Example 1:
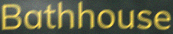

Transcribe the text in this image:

Bathhouse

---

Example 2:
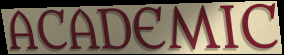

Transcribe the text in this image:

ACADEMIC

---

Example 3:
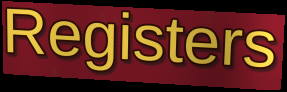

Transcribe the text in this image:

Registers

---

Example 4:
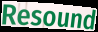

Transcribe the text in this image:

Resound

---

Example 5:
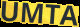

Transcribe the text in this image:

UMTA